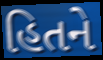
હિતને